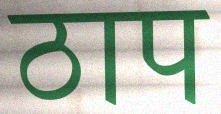
ठाप